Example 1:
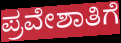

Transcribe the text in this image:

ಪ್ರವೇಶಾತಿಗೆ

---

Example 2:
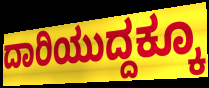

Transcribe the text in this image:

ದಾರಿಯುದ್ದಕ್ಕೂ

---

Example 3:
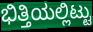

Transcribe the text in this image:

ಭಿತ್ತಿಯಲ್ಲಿಟ್ಟು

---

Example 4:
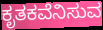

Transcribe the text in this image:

ಕೃತಕವೆನಿಸುವ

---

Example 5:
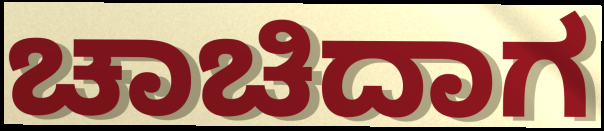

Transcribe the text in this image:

ಚಾಚಿದಾಗ